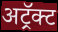
अट्रॅक्ट